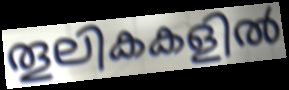
തൂലികകളിൽ